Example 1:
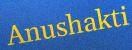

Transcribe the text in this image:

Anushakti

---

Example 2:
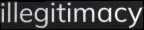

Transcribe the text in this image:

illegitimacy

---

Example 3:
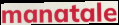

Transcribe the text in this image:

manatale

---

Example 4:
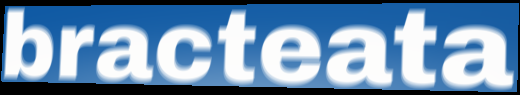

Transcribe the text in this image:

bracteata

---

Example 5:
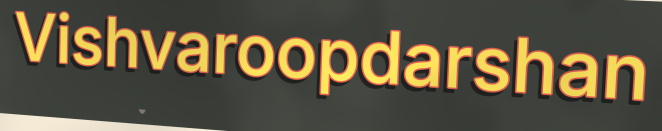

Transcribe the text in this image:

Vishvaroopdarshan